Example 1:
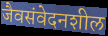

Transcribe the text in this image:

जैवसंवेदनशील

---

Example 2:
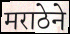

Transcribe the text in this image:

मराठेने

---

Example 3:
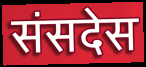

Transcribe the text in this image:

संसदेस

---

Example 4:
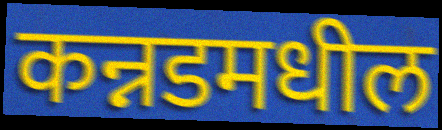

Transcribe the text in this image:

कन्नडमधील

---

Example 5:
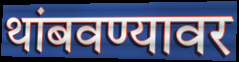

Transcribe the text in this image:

थांबवण्यावर